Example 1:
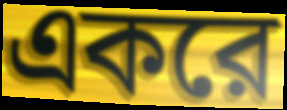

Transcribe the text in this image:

একরে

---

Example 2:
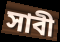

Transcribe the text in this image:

সাবী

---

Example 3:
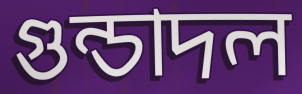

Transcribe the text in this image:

গুন্ডাদল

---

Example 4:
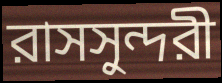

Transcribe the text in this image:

রাসসুন্দরী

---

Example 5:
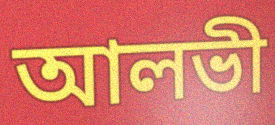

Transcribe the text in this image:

আলভী